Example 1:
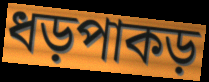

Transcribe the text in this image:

ধড়পাকড়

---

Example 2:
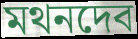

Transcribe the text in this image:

মথনদেব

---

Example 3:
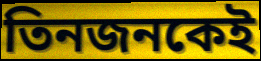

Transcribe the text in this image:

তিনজনকেই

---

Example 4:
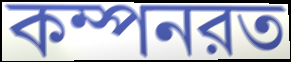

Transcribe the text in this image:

কম্পনরত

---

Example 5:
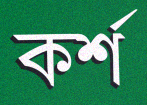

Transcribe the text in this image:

কর্শ